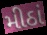
મીઠાં